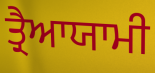
ਤ੍ਰੈਆਯਾਮੀ